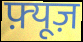
फ़्यूज़